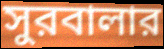
সুরবালার